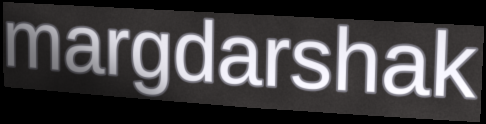
margdarshak